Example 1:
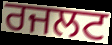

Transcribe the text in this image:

ਰਜਲਟ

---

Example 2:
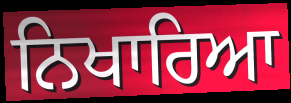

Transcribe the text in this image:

ਨਿਖਾਰਿਆ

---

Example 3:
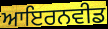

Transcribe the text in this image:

ਆਇਰਨਵੀਡ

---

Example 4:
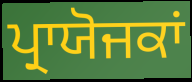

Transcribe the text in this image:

ਪ੍ਰਾਯੋਜਕਾਂ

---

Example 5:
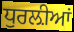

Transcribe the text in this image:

ਧੁਰਲ਼ੀਆਂ